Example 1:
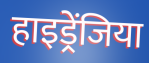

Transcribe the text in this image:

हाइड्रेंजिया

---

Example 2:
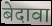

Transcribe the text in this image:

बेदावा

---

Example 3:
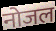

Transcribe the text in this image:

नोजल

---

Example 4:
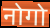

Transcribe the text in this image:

नोगो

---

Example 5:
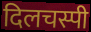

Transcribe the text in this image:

दिलचस्‍पी